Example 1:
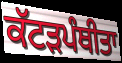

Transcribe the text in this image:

ਕੱਟੜਪੰਥੀਤਾ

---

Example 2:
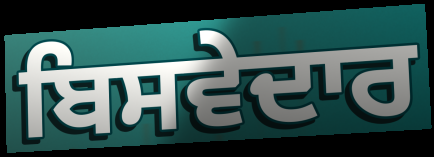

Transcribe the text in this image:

ਬਿਸਵੇਦਾਰ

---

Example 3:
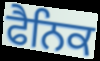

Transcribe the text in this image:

ਫੈਨਿਕ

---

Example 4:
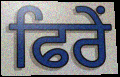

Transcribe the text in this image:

ਫਿਰੇਂ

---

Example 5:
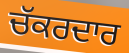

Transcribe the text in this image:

ਚੱਕਰਦਾਰ